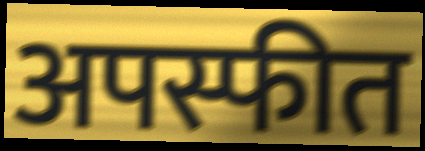
अपस्फीत